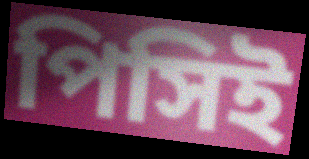
পিসিই